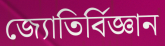
জ্যোতিৰ্বিজ্ঞান